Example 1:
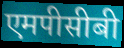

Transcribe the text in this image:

एमपीसीबी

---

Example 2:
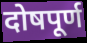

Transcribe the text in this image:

दोषपूर्ण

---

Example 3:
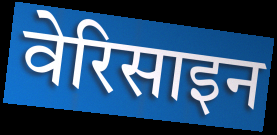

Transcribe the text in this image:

वेरिसाइन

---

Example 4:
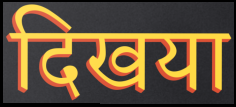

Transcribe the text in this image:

दिखया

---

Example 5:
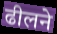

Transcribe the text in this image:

ढीलने